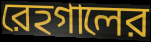
রেহগালের